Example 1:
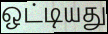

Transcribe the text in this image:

ஒட்டியது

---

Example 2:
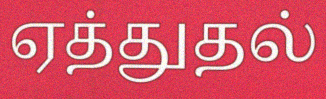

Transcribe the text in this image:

ஏத்துதல்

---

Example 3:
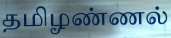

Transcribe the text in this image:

தமிழண்ணல்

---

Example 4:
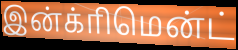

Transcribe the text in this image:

இன்க்ரிமென்ட்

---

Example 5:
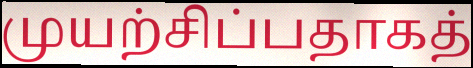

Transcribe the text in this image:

முயற்சிப்பதாகத்